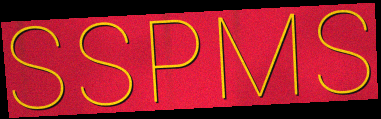
SSPMS